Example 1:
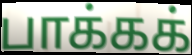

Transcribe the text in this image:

பாக்கக்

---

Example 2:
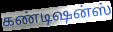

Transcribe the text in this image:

கண்டிஷன்ஸ்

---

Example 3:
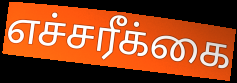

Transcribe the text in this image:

எச்சரீக்கை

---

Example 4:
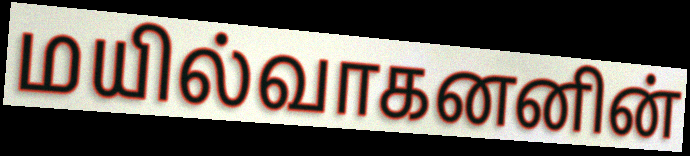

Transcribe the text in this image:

மயில்வாகனனின்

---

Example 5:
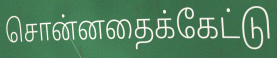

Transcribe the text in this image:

சொன்னதைக்கேட்டு